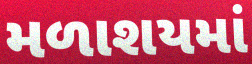
મળાશયમાં